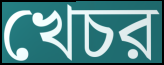
খেচর